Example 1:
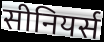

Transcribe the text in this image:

सीनियर्स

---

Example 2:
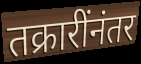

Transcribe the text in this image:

तक्रारींनंतर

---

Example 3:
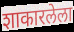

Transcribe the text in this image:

शाकारलेला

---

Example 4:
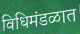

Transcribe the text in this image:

विधिमंडळात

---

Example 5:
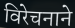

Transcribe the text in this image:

विरेचनाने